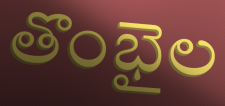
తొంభైల